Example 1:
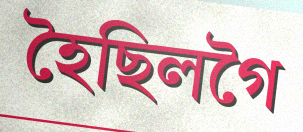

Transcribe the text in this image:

হৈছিলগৈ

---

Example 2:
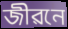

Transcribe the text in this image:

জীৱনে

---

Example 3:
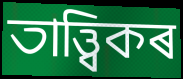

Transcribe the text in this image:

তাত্ত্বিকৰ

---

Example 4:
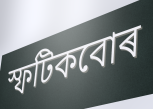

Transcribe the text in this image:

স্ফটিকবোৰ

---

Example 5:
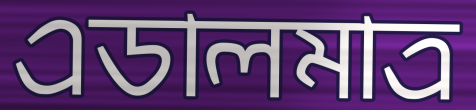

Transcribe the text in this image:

এডালমাত্ৰ